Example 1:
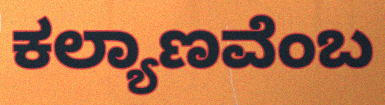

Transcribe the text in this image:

ಕಲ್ಯಾಣವೆಂಬ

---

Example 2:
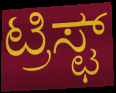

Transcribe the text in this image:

ಟ್ರಿಸ್ಟ್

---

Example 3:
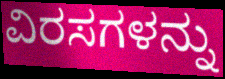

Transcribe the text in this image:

ವಿರಸಗಳನ್ನು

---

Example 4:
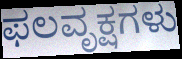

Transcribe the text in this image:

ಫಲವೃಕ್ಷಗಳು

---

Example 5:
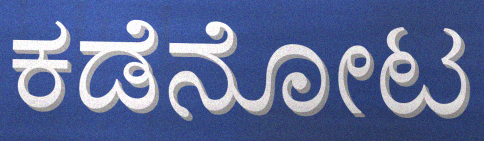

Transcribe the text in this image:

ಕಡೆನೋಟ